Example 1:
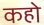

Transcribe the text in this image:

कहो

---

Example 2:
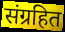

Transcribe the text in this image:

संग्रहित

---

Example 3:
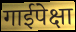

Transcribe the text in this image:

गाईपेक्षा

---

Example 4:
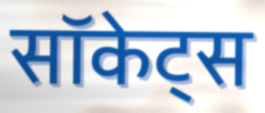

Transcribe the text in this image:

सॉकेट्स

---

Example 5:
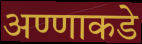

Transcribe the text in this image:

अण्णाकडे